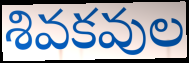
శివకవుల